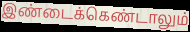
இண்டைக்கெண்டாலும்